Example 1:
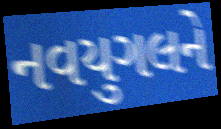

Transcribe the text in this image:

નવયુગલને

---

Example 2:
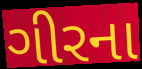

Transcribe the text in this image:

ગીરના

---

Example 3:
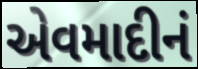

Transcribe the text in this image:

એવમાદીનં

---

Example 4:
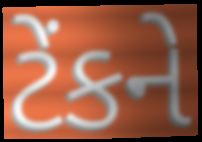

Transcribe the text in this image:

ટેંકને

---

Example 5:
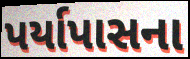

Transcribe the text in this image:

પર્યાપાસના